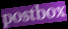
postbox